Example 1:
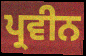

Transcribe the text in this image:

ਪ੍ਰਵੀਨ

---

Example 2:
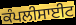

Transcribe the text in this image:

ਕੰਪਲੀਸਾਈਟ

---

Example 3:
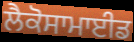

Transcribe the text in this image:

ਲੈਕੋਸਾਮਾਈਡ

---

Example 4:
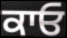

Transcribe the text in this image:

ਕਾਓ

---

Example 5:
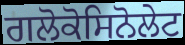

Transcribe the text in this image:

ਗਲੋਕੋਸਿਨੋਲੇਟ